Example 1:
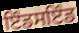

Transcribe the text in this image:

ਇੰਡਸਇੰਡ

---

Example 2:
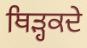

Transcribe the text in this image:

ਥਿੜ੍ਹਕਦੇ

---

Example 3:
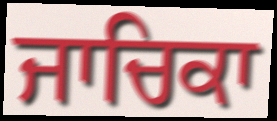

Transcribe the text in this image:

ਜਾਚਿਕਾ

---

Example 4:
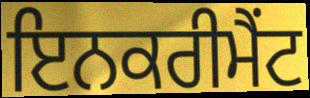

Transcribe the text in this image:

ਇਨਕਰੀਮੈਂਟ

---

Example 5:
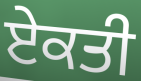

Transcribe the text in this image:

ਏਕਤੀ